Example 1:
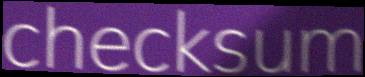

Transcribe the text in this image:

checksum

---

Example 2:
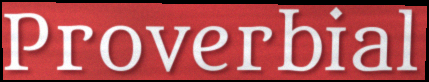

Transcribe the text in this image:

Proverbial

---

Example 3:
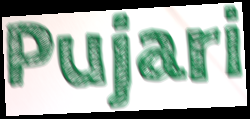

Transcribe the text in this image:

Pujari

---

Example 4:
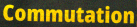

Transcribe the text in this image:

Commutation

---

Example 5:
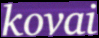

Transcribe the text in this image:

kovai